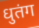
धुतंग